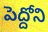
పెద్దోని